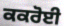
ਕਕਰੋਈ